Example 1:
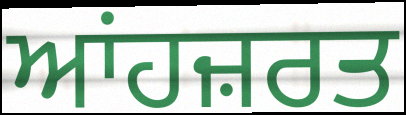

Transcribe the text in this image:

ਆਂਹਜ਼ਰਤ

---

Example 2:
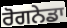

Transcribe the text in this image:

ਰੋਗਨੇਡਾ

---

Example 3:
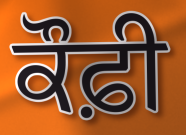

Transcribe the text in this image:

ਕੌਫ਼ੀ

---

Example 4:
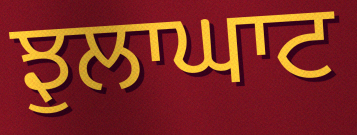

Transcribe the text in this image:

ਝੁਲਾਘਾਟ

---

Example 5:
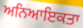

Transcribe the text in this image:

ਅਨਿਆਇਕਤਾ